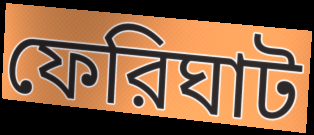
ফেরিঘাট